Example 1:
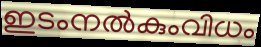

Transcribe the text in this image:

ഇടംനൽകുംവിധം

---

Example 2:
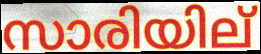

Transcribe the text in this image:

സാരിയില്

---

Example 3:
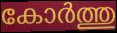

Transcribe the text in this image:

കോർത്തു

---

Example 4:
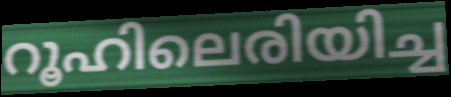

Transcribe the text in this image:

റൂഹിലെരിയിച്ച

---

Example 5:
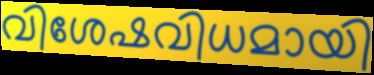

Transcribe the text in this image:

വിശേഷവിധമായി